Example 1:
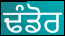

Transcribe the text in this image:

ਢੰਡੋਰ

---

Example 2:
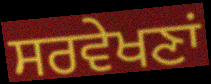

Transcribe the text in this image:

ਸਰਵੇਖਣਾਂ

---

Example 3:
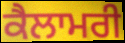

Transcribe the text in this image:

ਕੈਲਾਮਰੀ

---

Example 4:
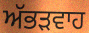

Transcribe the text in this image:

ਅੱਭੜਵਾਹ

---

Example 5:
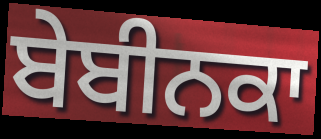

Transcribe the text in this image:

ਬੇਬੀਨਕਾ